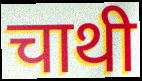
चाथी